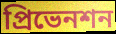
প্রিভেনশন